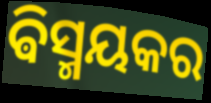
ଵିସ୍ମୟକର